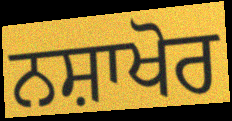
ਨਸ਼ਾਖੋਰ